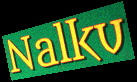
Nalku